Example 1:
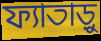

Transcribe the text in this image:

ফ্যাতাড়ু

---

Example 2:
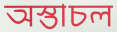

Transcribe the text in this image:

অস্তাচল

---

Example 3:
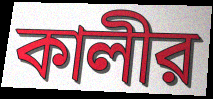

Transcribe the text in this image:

কালীর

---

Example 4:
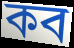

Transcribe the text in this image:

কব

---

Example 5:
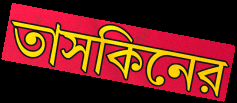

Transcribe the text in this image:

তাসকিনের